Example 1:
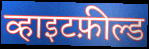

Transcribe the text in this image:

व्हाइटफ़ील्ड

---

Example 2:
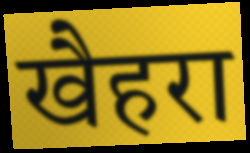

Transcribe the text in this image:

खैहरा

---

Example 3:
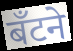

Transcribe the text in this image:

बँटने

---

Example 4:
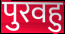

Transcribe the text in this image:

पुरवहु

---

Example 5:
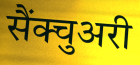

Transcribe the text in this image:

सैंक्चुअरी